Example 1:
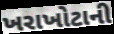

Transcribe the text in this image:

ખરાખોટાની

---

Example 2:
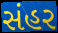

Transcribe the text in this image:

સંહર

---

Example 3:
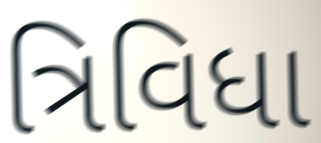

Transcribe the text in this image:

ત્રિવિધા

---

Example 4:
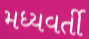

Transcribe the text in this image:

મધ્યવર્તી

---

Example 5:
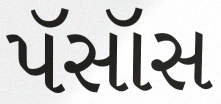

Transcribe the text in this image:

પૅસૉસ